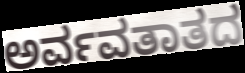
ಅರ್ವವತಾತದ